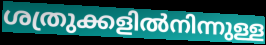
ശത്രുക്കളിൽനിന്നുള്ള